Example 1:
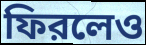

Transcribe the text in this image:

ফিরলেও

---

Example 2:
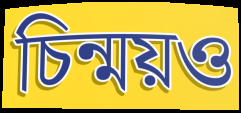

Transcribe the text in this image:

চিন্ময়ও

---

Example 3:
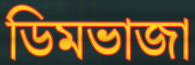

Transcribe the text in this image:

ডিমভাজা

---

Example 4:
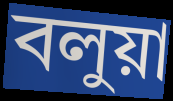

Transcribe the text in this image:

বলুয়া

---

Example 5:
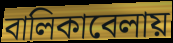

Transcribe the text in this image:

বালিকাবেলায়